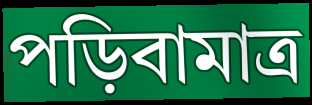
পড়িবামাত্র